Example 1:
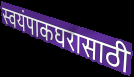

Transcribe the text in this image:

स्वयंपाकघरासाठी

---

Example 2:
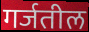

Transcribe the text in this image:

गर्जतील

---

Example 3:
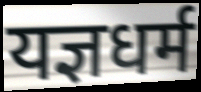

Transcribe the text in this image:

यज्ञधर्म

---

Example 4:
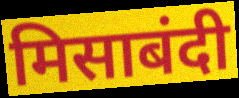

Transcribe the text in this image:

मिसाबंदी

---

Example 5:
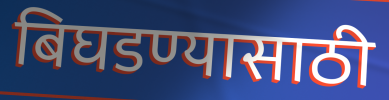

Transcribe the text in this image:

बिघडण्यासाठी